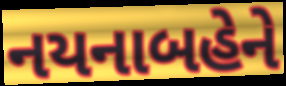
નયનાબહેને